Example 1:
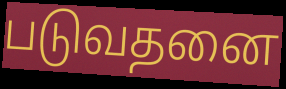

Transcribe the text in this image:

படுவதனை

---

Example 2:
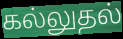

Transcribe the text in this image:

கல்லுதல்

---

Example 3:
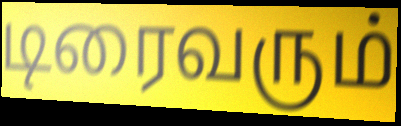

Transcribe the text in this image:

டிரைவரும்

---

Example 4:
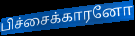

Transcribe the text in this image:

பிச்சைக்காரனோ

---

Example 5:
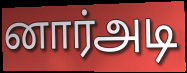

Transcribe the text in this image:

னார்அடி